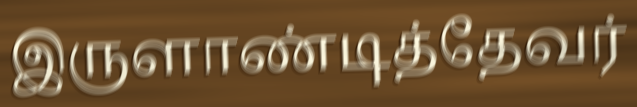
இருளாண்டித்தேவர்